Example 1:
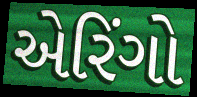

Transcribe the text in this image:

એરિંગો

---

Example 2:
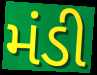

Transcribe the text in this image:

મંડી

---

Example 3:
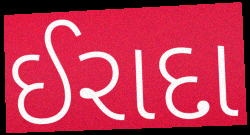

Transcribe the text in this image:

ઈરાદા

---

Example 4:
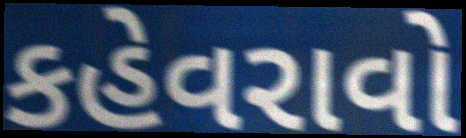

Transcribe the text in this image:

કહેવરાવો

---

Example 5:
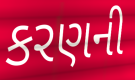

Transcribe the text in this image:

કરણની